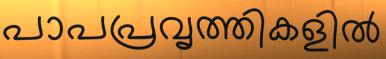
പാപപ്രവൃത്തികളിൽ